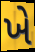
ખે